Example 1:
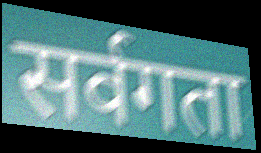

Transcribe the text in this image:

सर्वगता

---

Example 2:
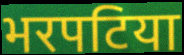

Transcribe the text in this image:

भरपटिया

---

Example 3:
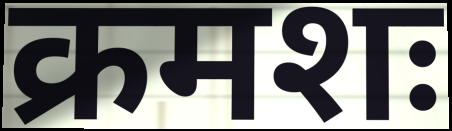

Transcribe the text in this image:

क्रमशः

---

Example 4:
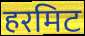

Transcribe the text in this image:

हरमिट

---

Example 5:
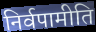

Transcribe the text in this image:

निर्वपामीति